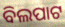
ବିଲପାଟ